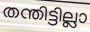
തന്തിട്ടില്ലാ